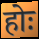
होः